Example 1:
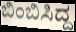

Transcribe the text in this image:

ಬಿಂಬಿಸಿದ್ದ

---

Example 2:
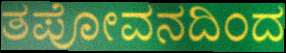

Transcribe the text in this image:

ತಪೋವನದಿಂದ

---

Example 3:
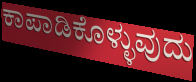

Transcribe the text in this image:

ಕಾಪಾಡಿಕೊಳ್ಳುವುದು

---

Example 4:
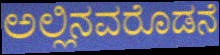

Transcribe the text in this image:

ಅಲ್ಲಿನವರೊಡನೆ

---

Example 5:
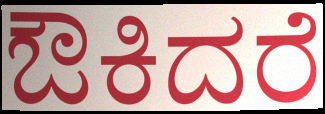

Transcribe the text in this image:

ಔಕಿದರೆ